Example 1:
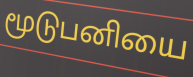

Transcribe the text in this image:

மூடுபனியை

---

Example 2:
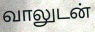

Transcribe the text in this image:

வாலுடன்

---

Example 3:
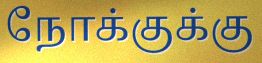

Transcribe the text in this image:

நோக்குக்கு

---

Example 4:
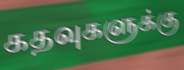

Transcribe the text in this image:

கதவுகளுக்கு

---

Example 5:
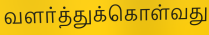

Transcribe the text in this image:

வளர்த்துக்கொள்வது